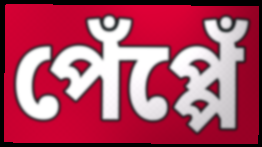
পেঁপ্পেঁ